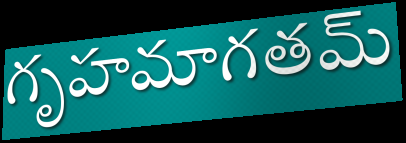
గృహమాగతమ్